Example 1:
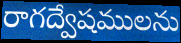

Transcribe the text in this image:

రాగద్వేషములను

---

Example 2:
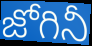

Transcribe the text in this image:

జోగినీ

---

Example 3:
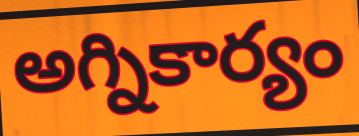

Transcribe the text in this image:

అగ్నికార్యం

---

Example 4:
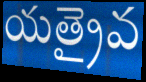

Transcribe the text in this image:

యత్రైవ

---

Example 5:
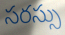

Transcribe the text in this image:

సరస్సు